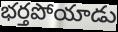
భర్తపోయాడు